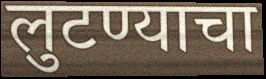
लुटण्याचा